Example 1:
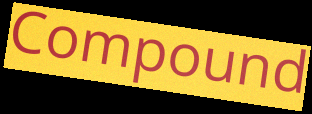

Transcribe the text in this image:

Compound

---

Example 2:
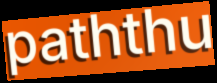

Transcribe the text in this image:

paththu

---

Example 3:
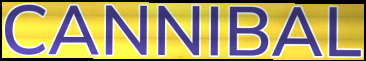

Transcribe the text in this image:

CANNIBAL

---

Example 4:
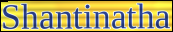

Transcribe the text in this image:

Shantinatha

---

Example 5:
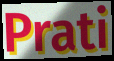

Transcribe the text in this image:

Prati